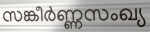
സങ്കീർണ്ണസംഖ്യ